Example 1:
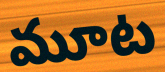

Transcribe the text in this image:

మూట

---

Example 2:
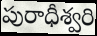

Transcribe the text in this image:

పురాధీశ్వరి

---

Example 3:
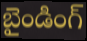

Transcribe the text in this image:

బైండింగ్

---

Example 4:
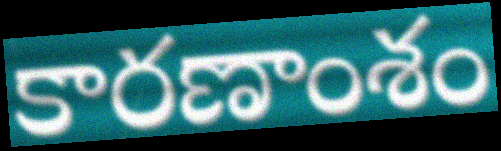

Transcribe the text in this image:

కారణాంశం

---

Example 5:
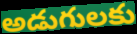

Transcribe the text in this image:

అడుగులకు